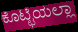
ಕೊಟ್ಟೆಯಲ್ಲಾ